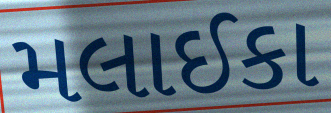
મલાઈકા